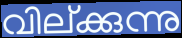
വില്ക്കുന്നു